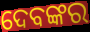
ଦେବଙ୍କର